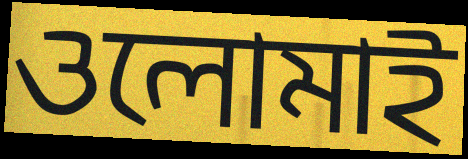
ওলোমাই